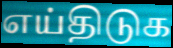
எய்திடுக